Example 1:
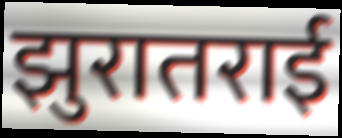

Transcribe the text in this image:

झुरातराई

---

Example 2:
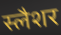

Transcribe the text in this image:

स्लैशर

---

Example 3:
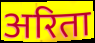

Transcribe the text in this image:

अरिता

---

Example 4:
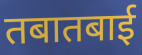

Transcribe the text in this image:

तबातबाई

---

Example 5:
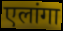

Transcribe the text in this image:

एलांगा